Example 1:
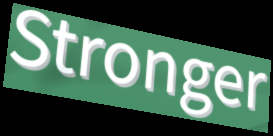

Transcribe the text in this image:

Stronger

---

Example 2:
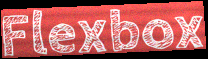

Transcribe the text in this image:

Flexbox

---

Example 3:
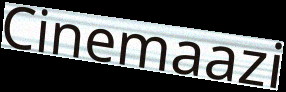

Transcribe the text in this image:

Cinemaazi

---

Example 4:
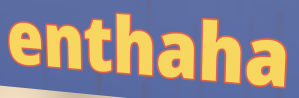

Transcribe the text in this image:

enthaha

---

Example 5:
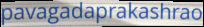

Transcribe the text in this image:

pavagadaprakashrao